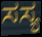
ಸಸ್ಯ